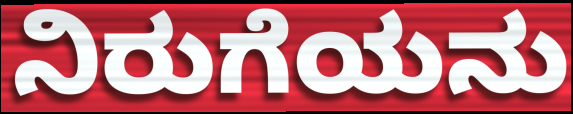
ನಿರುಗೆಯನು